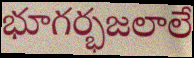
భూగర్భజలాలే